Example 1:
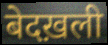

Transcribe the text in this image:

बेदख़ली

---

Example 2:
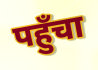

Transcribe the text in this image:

पहुँचा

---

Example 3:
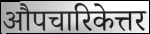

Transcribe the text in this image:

औपचारिकेत्तर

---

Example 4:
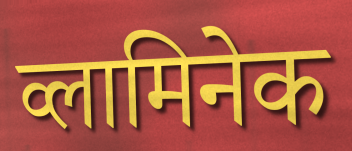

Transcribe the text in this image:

व्लामिनेक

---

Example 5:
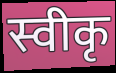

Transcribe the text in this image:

स्वीकृ